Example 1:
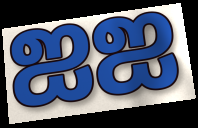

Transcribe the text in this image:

ஐஐ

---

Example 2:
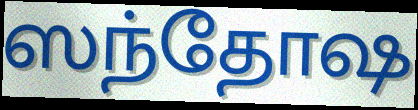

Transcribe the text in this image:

ஸந்தோஷ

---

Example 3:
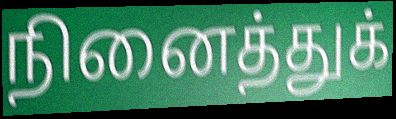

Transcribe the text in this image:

நினைத்துக்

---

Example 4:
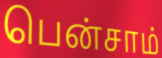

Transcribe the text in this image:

பென்சாம்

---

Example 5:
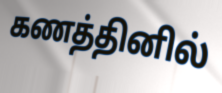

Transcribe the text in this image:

கணத்தினில்